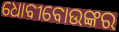
ଧୋବୀବୋଉଙ୍କର